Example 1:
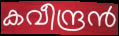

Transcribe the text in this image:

കവീന്ദ്രൻ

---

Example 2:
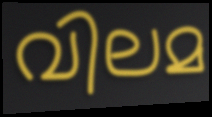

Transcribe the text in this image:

വിലമ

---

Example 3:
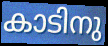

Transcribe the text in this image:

കാടിനു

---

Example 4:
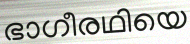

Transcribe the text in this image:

ഭാഗീരഥിയെ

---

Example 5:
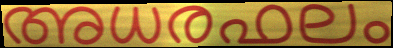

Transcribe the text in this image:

അധരഫലം